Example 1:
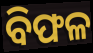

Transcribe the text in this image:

ବିଫଳ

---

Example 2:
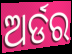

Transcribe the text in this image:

ଅର୍ଡର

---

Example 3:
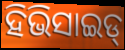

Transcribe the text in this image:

ହିଭିସାଇଡ୍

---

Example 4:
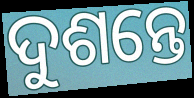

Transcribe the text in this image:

ଦୁଶନ୍ତେ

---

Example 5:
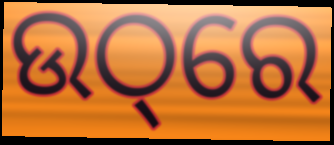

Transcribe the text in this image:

ଉଠ୍‌ରେ